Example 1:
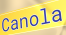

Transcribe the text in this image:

Canola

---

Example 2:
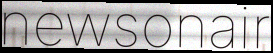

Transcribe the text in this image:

newsonair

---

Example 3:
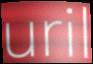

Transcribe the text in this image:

uril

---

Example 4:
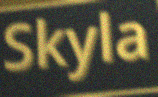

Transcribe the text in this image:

Skyla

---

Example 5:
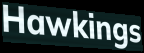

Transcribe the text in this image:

Hawkings